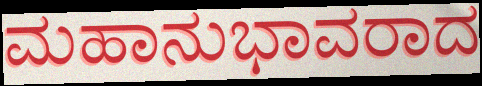
ಮಹಾನುಭಾವರಾದ